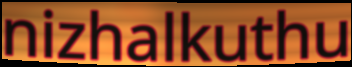
nizhalkuthu